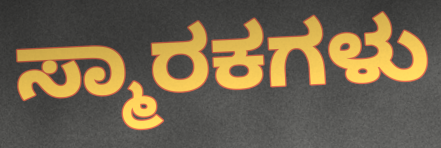
ಸ್ಮಾರಕಗಳು